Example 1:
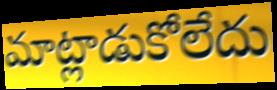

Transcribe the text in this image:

మాట్లాడుకోలేదు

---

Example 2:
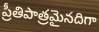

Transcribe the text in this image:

ప్రీతిపాత్రమైనదిగా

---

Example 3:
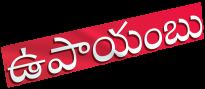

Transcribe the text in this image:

ఉపాయంబు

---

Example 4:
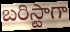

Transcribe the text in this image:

బరిస్టాగా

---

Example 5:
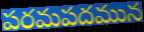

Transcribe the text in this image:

పరమపదమున